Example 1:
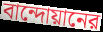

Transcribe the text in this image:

বান্দোয়ানের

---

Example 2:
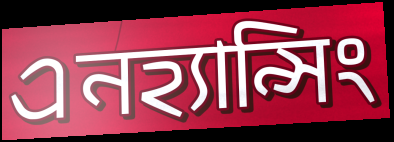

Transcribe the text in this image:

এনহ্যান্সিং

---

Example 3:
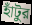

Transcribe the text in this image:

হাঁটুর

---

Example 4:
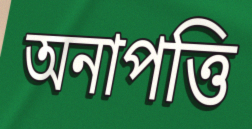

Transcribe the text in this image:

অনাপত্তি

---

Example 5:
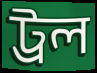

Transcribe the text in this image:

ট্রল